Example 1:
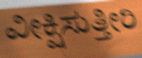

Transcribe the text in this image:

ವೀಕ್ಷಿಸುತ್ತೀರಿ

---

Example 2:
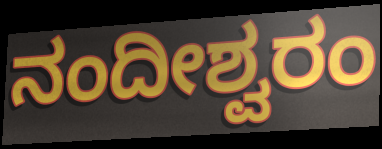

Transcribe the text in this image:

ನಂದೀಶ್ವರಂ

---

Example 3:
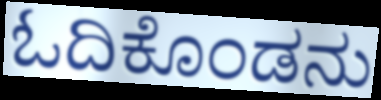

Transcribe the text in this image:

ಓದಿಕೊಂಡನು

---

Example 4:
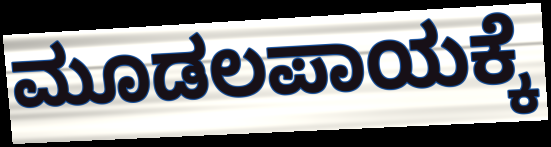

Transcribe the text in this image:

ಮೂಡಲಪಾಯಕ್ಕೆ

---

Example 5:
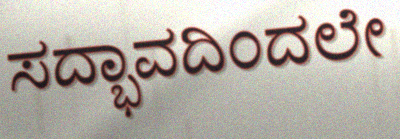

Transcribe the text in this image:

ಸದ್ಭಾವದಿಂದಲೇ